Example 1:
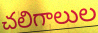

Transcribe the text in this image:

చలిగాలుల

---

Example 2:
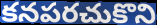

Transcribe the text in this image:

కనపరచుకొని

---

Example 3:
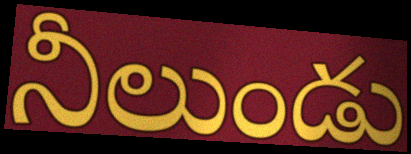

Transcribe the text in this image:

నీలుండు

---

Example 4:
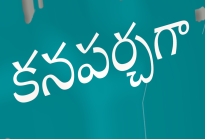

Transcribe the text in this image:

కనపర్చగా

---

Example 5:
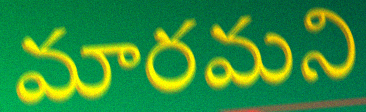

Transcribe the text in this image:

మారమని